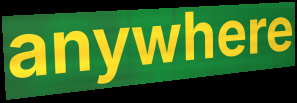
anywhere